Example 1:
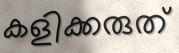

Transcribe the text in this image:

കളിക്കരുത്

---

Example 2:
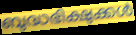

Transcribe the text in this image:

ബുദ്ധഭിക്ഷുക്കൾ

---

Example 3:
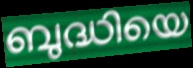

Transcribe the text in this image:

ബുദ്ധിയെ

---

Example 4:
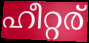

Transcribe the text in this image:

ഹീറ്റര്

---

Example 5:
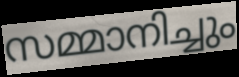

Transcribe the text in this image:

സമ്മാനിച്ചും